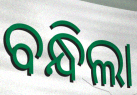
ବନ୍ଧିଲା